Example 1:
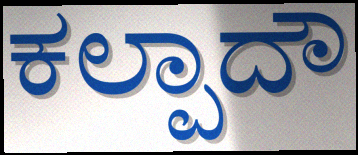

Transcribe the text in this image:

ಕಲ್ಪಾದೌ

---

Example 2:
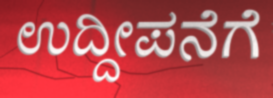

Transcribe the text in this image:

ಉದ್ದೀಪನೆಗೆ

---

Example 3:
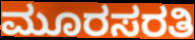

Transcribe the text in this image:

ಮೂರಸರತಿ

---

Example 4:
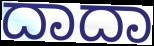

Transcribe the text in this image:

ದಾದಾ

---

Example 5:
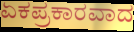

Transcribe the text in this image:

ಏಕಪ್ರಕಾರವಾದ